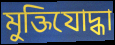
মুক্তিযোদ্ধা